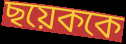
ছয়েককে